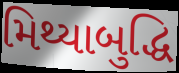
મિથ્યાબુદ્ધિ